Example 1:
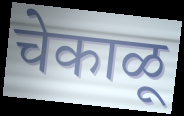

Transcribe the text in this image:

चेकाळू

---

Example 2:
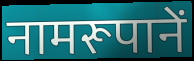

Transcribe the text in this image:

नामरूपानें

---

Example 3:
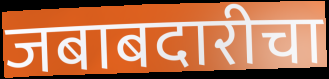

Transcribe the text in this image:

जबाबदारीचा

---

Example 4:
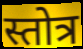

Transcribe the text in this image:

स्तोत्र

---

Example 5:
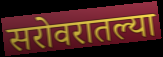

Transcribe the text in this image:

सरोवरातल्या